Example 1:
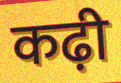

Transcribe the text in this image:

कढ़ी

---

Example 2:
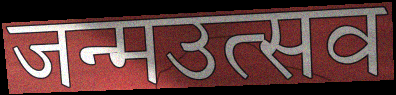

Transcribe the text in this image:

जन्मउत्सव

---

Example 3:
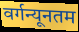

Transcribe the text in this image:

वर्गन्यूनतम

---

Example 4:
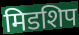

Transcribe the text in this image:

मिडशिप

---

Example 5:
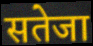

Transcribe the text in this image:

सतेजा